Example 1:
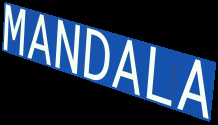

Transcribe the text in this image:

MANDALA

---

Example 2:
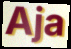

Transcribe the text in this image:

Aja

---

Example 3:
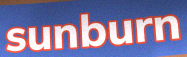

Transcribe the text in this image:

sunburn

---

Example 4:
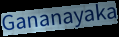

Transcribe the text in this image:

Gananayaka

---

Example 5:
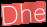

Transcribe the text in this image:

Dhe